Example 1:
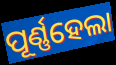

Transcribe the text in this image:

ପୂର୍ଣ୍ଣହେଲା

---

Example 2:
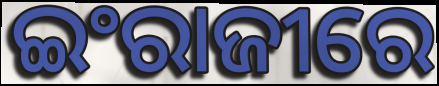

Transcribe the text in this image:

ଇଂରାଜୀରେ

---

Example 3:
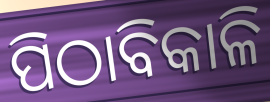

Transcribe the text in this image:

ପିଠାବିକାଳି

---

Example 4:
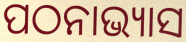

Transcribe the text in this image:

ପଠନାଭ୍ୟାସ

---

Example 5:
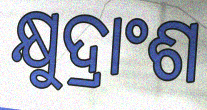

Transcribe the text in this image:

କ୍ଷୁଦ୍ରାଂଶ